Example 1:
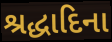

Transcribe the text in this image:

શ્રદ્ધાદિના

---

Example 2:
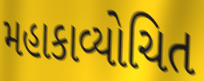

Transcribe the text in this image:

મહાકાવ્યોચિત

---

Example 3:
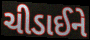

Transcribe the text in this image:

ચીડાઈને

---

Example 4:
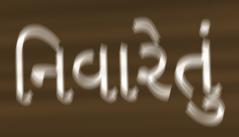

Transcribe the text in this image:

નિવારેતું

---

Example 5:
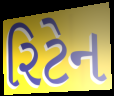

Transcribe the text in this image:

રિટેન